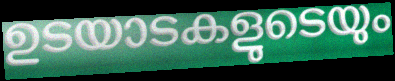
ഉടയാടകളുടെയും